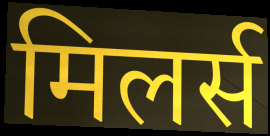
मिलर्स